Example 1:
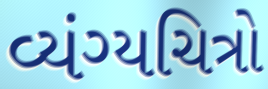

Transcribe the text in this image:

વ્યંગ્યચિત્રો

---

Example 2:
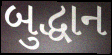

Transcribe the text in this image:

બુદ્ધાન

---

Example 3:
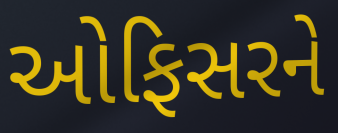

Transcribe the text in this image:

ઓફિસરને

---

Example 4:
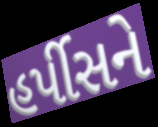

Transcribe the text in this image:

હર્પીસને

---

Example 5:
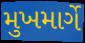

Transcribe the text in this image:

મુખમાર્ગે